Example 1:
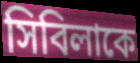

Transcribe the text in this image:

সিবিলাকে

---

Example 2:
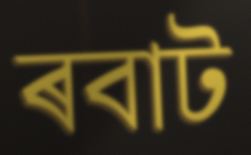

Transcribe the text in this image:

ৰবাট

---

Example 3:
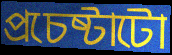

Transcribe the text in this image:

প্ৰচেষ্টাটো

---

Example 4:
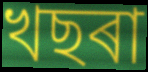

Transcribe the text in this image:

খছৰা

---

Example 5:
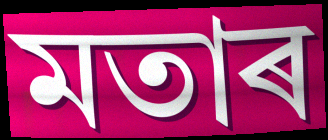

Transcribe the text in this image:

মতাৰ